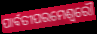
ପାର୍ବତୀପରମେଶ୍ଵରୌ